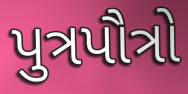
પુત્રપૌત્રો